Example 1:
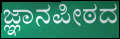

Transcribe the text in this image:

ಜ್ಞಾನಪೀಠದ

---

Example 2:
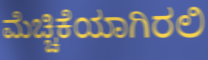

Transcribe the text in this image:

ಮೆಚ್ಚಿಕೆಯಾಗಿರಲಿ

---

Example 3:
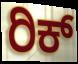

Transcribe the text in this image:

ರಿಕ್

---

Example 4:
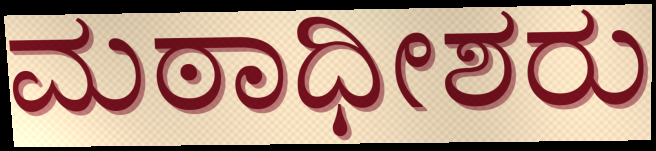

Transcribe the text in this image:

ಮಠಾಧೀಶರು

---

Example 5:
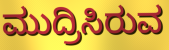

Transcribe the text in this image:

ಮುದ್ರಿಸಿರುವ